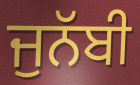
ਜੁਨੱਬੀ